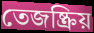
তেজষ্ক্রিয়